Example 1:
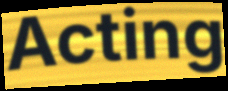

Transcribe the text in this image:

Acting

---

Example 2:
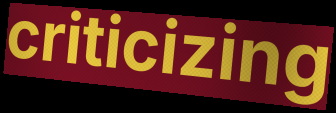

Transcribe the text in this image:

criticizing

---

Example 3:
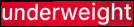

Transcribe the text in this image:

underweight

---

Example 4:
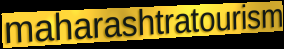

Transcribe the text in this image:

maharashtratourism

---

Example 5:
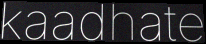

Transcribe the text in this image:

kaadhate